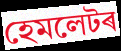
হেমলেটৰ